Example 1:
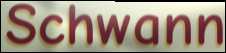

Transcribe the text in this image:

Schwann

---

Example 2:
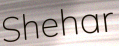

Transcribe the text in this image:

Shehar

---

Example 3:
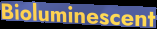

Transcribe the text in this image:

Bioluminescent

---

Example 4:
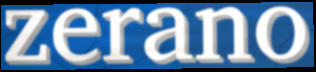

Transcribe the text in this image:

zerano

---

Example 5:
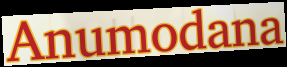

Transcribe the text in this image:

Anumodana